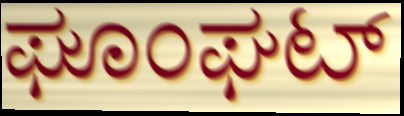
ಘೂಂಘಟ್